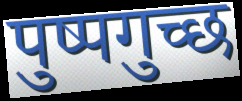
पुष्पगुच्छ